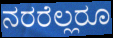
ನರರೆಲ್ಲರೂ